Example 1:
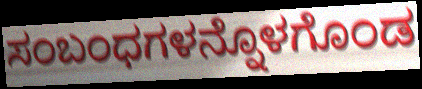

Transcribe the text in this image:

ಸಂಬಂಧಗಳನ್ನೊಳಗೊಂಡ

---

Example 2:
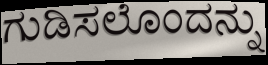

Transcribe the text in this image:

ಗುಡಿಸಲೊಂದನ್ನು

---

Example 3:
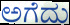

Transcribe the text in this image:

ಅಗೆದು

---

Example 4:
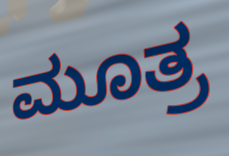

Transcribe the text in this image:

ಮೂತ್ರ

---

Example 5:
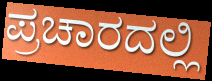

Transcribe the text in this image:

ಪ್ರಚಾರದಲ್ಲಿ